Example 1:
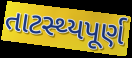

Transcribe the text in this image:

તાટસ્થ્યપૂર્ણ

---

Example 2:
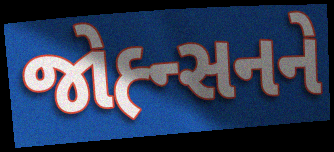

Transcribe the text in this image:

જોહ્ન્સનને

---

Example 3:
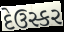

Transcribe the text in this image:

દેઉસ્કર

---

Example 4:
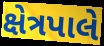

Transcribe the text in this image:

ક્ષેત્રપાલે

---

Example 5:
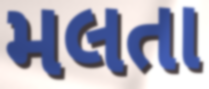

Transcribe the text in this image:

મલતા